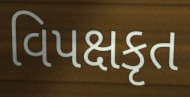
વિપક્ષકૃત